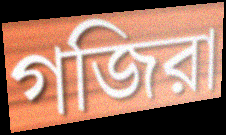
গজিরা